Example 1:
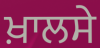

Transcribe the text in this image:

ਖ਼ਾਲਸੇ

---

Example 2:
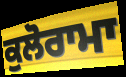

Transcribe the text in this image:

ਕੁਲੋਰਾਮਾ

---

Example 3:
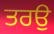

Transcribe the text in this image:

ਤਰਉ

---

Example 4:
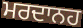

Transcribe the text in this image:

ਮਰਦਾਨਹ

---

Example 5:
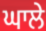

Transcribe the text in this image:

ਘਾਲੇ